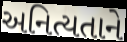
અનિત્યતાને